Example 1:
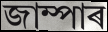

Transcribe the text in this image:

জাম্পাৰ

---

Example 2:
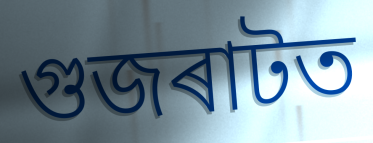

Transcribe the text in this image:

গুজৰাটত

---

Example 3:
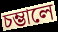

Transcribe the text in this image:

চম্ভালে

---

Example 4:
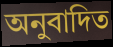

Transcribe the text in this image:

অনুবাদিত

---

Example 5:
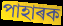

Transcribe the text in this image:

পাহাৰক